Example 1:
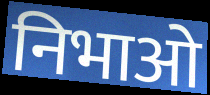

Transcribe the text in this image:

निभाओ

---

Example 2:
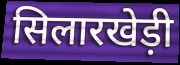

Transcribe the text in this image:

सिलारखेड़ी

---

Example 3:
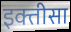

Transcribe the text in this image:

इक्तीसा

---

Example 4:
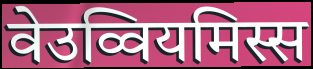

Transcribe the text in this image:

वेउव्वियमिस्स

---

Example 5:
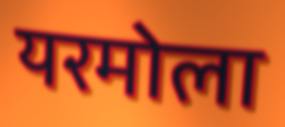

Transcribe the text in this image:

यरमोला